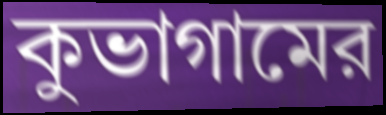
কুভাগামের